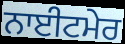
ਨਾਈਟਮੇਰ